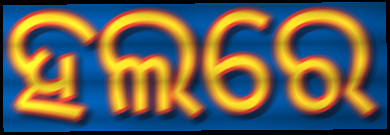
ହଲରେ